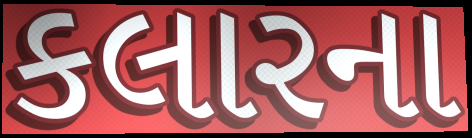
કલારના